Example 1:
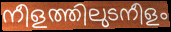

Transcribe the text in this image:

നീളത്തിലുടനീളം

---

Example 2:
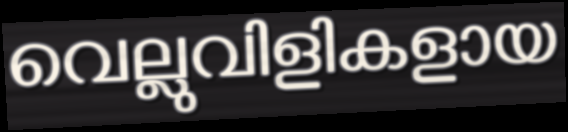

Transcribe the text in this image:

വെല്ലുവിളികളായ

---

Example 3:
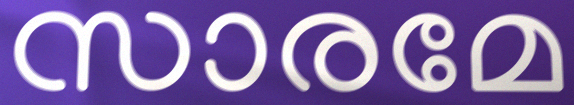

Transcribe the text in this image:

സാരമേ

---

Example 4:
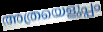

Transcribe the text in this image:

അത്രയെളുപ്പം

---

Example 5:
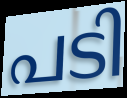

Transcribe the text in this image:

പടി